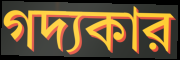
গদ্যকার